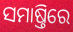
ସମାଷ୍ତିରେ